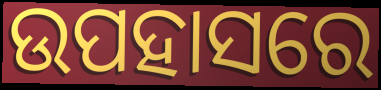
ଉପହାସରେ